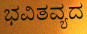
ಭವಿತವ್ಯದ